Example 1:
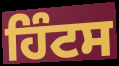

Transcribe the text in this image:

ਹਿੰਟਸ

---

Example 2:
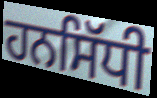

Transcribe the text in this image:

ਹਨਸਿੱਧੀ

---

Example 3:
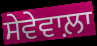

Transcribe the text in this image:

ਸੇਵੇਵਾਲ਼ਾ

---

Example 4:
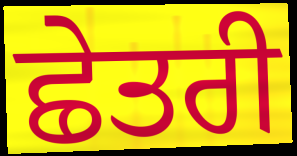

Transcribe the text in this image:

ਛੇਤਰੀ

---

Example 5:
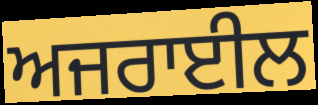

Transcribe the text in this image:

ਅਜਰਾਈਲ